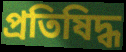
প্রতিষিদ্ধ